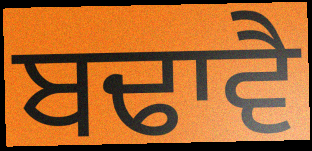
ਬਢਾਵੈ